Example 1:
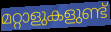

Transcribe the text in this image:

മറ്റാളുകളുണ്ട്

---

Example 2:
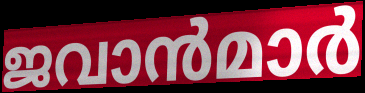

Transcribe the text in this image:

ജവാൻമാർ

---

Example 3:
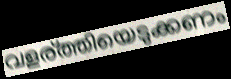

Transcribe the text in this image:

വളര്ത്തിയെടുക്കണം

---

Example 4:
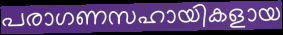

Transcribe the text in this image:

പരാഗണസഹായികളായ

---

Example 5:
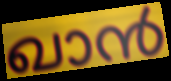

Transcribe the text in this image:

ഖാൻ